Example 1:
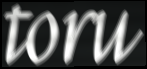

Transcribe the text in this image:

toru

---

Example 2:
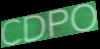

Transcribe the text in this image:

CDPO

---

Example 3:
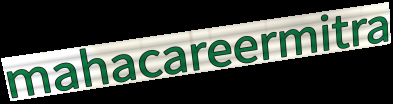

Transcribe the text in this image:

mahacareermitra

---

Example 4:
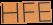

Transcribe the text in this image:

HFE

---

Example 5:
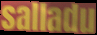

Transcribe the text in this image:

salladu